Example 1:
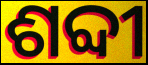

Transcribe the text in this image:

ଶବ୍ଦୀ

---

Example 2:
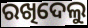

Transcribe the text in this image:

ରଖିଦେଲୁ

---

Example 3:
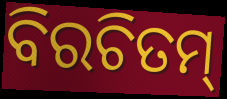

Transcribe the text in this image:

ବିରଚିତମ୍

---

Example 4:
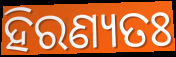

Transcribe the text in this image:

ହିରଣ୍ୟତଃ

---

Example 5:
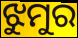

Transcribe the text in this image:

ଝୁମୁର